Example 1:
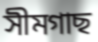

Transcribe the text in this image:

সীমগাছ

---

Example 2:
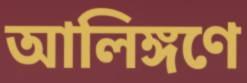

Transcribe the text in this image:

আলিঙ্গণে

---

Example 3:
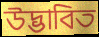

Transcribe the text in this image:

উদ্ভাবিত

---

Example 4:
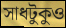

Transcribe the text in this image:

সাধটুকুও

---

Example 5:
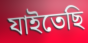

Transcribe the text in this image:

যাইতেছি